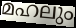
മഹലും